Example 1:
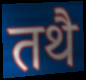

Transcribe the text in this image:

तथै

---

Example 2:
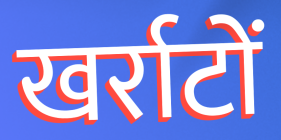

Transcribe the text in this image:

खर्राटों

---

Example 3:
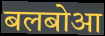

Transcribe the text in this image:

बलबोआ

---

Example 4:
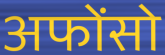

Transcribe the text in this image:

अफोंसो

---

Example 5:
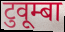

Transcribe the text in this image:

टुवूम्बा